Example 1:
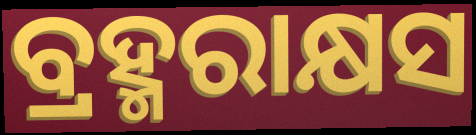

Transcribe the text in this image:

ବ୍ରହ୍ମରାକ୍ଷସ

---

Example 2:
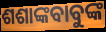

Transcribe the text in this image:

ଶଶାଙ୍କବାବୁଙ୍କ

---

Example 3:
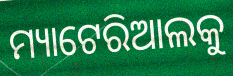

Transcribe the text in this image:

ମ୍ୟାଟେରିଆଲକୁ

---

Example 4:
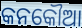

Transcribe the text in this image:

କନକୌଆ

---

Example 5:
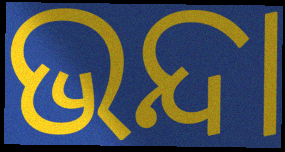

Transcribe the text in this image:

ଭନ୍ଦା